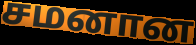
சமனான